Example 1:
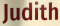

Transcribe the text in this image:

Judith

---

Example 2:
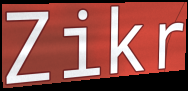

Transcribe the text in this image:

Zikr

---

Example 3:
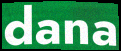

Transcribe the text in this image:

dana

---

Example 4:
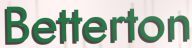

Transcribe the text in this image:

Betterton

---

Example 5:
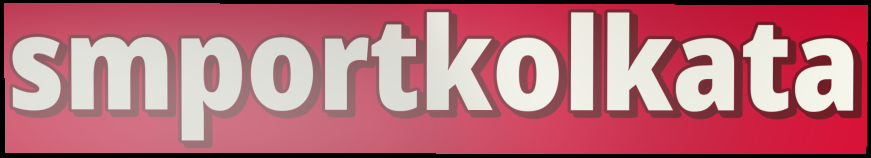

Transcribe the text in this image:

smportkolkata